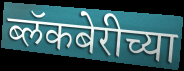
ब्लॅकबेरीच्या